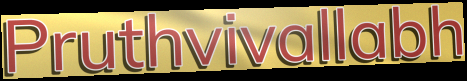
Pruthvivallabh